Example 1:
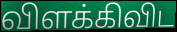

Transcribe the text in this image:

விளக்கிவிட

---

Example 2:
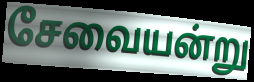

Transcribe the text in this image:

சேவையன்று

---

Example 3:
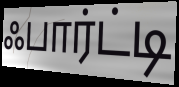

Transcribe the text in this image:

ஃபார்ட்டி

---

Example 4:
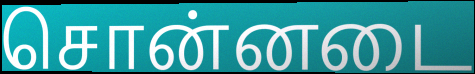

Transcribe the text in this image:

சொன்னடை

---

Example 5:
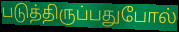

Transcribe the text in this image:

படுத்திருப்பதுபோல்